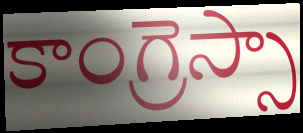
కాంగ్రెస్సా